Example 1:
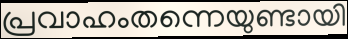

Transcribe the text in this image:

പ്രവാഹംതന്നെയുണ്ടായി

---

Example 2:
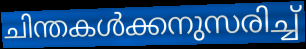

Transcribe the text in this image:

ചിന്തകൾക്കനുസരിച്ച്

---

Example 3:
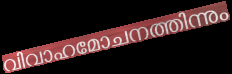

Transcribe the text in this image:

വിവാഹമോചനത്തിന്നും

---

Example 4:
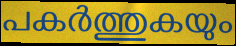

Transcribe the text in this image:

പകർത്തുകയും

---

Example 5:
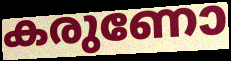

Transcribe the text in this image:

കരുണോ